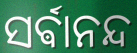
ସର୍ଵାନନ୍ଦ